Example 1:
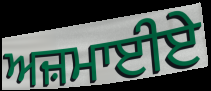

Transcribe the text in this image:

ਅਜ਼ਮਾਈਏ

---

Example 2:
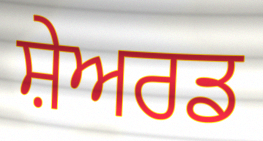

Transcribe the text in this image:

ਸ਼ੇਅਰਡ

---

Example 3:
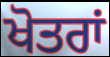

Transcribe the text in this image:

ਖੋਤਰਾਂ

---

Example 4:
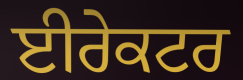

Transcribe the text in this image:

ਈਰੇਕਟਰ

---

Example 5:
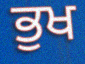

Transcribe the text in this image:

ਭੁਖ